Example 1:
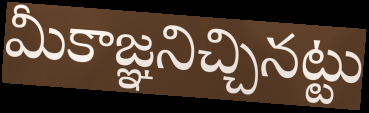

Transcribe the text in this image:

మీకాజ్ఞనిచ్చినట్టు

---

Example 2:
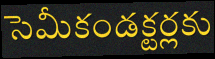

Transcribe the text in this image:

సెమీకండక్టర్లకు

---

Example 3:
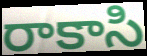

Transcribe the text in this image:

రాకాసి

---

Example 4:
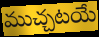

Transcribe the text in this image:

ముచ్చటయే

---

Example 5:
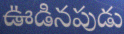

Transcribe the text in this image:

ఊడినపుడు